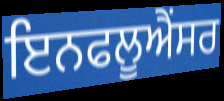
ਇਨਫਲੂਐਂਸਰ